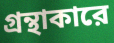
গ্রন্থাকারে